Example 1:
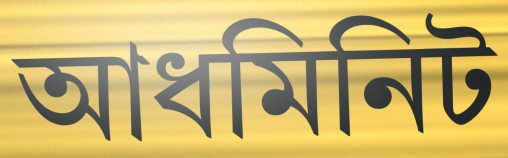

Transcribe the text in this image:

আধমিনিট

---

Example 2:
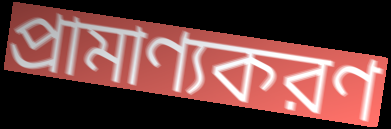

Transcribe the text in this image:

প্রামাণ্যকরণ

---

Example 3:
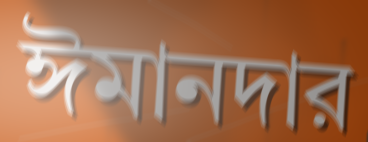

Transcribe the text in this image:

ঈমানদার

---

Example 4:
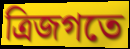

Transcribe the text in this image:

ত্রিজগতে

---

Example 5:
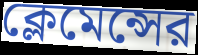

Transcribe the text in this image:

ক্লেমেন্সের